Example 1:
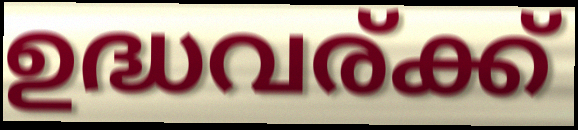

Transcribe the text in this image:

ഉദ്ധവര്ക്ക്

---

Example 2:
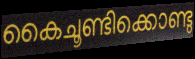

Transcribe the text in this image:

കൈചൂണ്ടിക്കൊണ്ടു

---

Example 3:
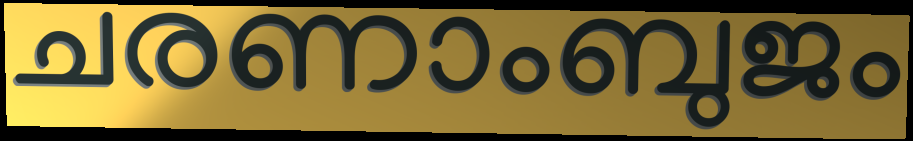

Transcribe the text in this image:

ചരണാംബുജം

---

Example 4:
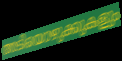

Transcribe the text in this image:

അടിയൊഴുക്കുകളും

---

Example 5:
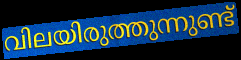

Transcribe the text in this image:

വിലയിരുത്തുന്നുണ്ട്